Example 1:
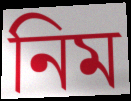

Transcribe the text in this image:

নিম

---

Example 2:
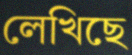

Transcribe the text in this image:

লেখিছে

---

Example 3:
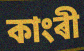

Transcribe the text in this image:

কাংৰী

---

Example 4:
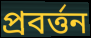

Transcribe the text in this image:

প্ৰবৰ্ত্তন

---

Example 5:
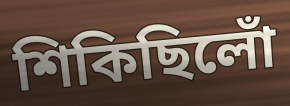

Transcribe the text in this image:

শিকিছিলোঁ